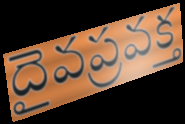
దైవప్రవక్త